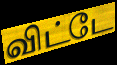
விட்டே